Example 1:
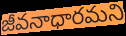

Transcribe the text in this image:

జీవనాధారమని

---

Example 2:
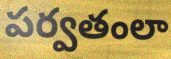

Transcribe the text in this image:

పర్వతంలా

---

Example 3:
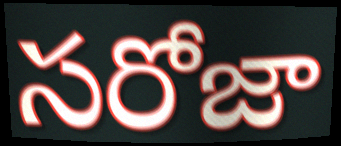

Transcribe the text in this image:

సరోజా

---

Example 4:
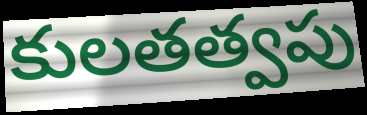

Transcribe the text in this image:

కులతత్వపు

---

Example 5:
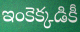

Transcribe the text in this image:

ఇంకెక్కడికీ